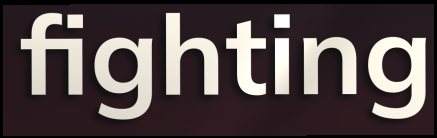
fighting